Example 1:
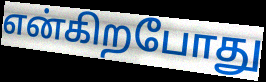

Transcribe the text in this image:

என்கிறபோது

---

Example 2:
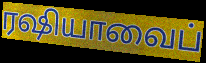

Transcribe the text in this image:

ரஷியாவைப்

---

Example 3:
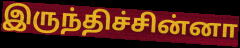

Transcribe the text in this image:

இருந்திச்சின்னா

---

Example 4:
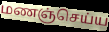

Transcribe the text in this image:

மணஞ்செய்ய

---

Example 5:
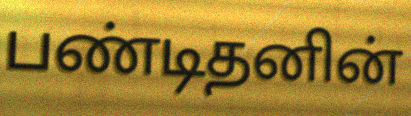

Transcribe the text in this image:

பண்டிதனின்